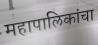
महापालिकांचा